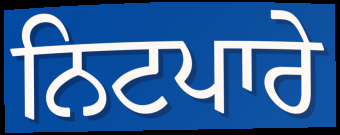
ਨਿਟਪਾਰੇ